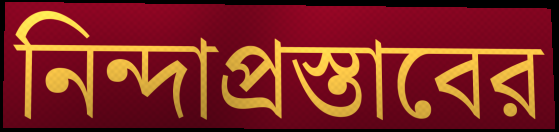
নিন্দাপ্রস্তাবের